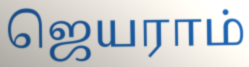
ஜெயராம்